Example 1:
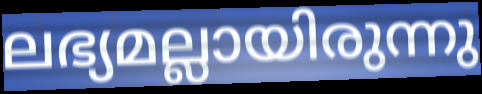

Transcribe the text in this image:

ലഭ്യമല്ലായിരുന്നു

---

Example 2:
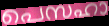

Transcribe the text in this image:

പെസഹാ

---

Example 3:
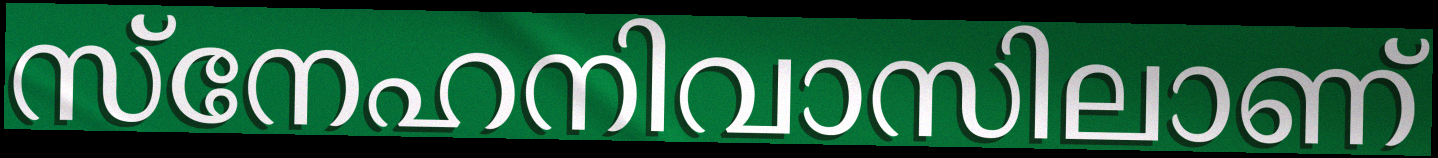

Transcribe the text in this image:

സ്നേഹനിവാസിലാണ്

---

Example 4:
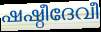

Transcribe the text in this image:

ഷഷ്ഠീദേവീ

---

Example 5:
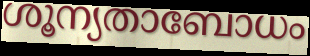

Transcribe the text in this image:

ശൂന്യതാബോധം